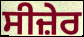
ਸੀਜ਼ੇਰ